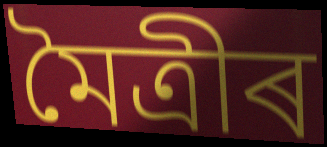
মৈত্ৰীৰ